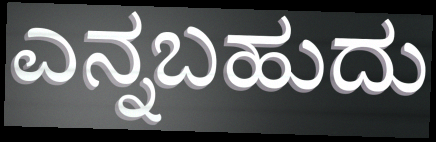
ಎನ್ನಬಹುದು